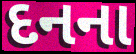
દનના